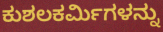
ಕುಶಲಕರ್ಮಿಗಳನ್ನು